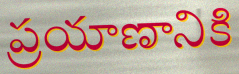
ప్రయాణానికి